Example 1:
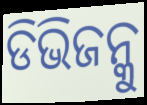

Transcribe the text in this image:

ଡିଭିଜନ୍କୁ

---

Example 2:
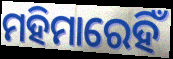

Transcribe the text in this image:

ମହିମାରେହିଁ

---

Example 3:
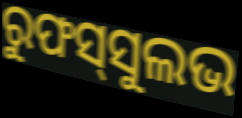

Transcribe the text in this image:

ରୁଫସ୍‌ସୁଲଭ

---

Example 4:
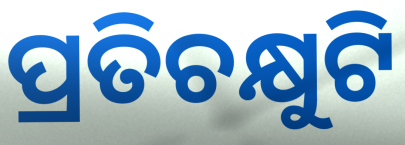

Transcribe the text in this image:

ପ୍ରତିଚକ୍ଷୁଟି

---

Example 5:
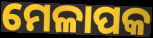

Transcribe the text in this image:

ମେଳାପକ